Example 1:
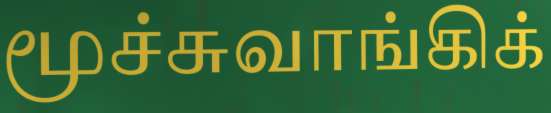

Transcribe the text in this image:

மூச்சுவாங்கிக்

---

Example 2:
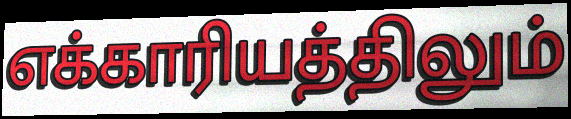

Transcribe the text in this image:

எக்காரியத்திலும்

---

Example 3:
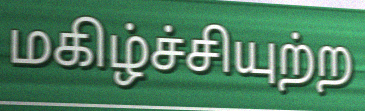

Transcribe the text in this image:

மகிழ்ச்சியுற்ற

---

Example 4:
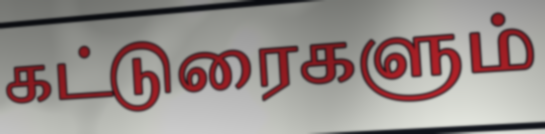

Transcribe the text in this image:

கட்டுரைகளும்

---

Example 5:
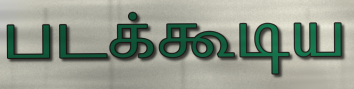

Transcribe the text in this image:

படக்கூடிய